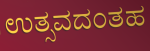
ಉತ್ಸವದಂತಹ